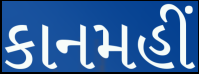
કાનમહીં